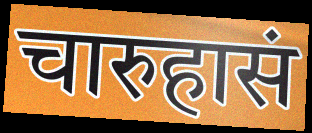
चारुहासं